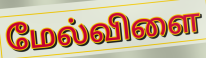
மேல்விளை